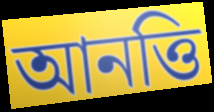
আনত্তি